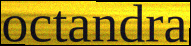
octandra